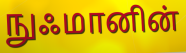
நுஃமானின்